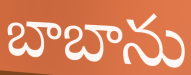
బాబాను